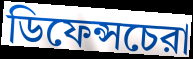
ডিফেন্সচেরা